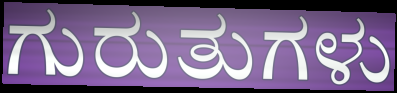
ಗುರುತುಗಳು